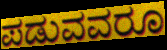
ಪಡುವವರೂ